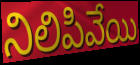
నిలిపివేయి